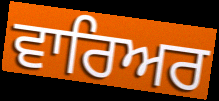
ਵਾਰਿਅਰ